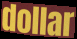
dollar